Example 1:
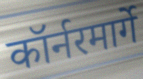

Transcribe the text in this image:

कॉर्नरमार्गे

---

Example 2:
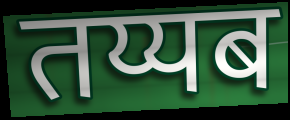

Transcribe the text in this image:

तय्यब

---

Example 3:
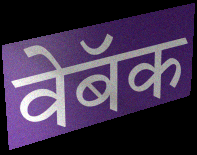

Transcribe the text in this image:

वेबॅक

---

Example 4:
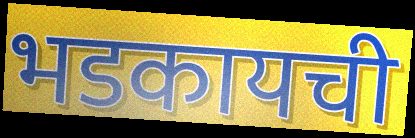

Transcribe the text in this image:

भडकायची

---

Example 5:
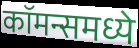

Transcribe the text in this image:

कॉमन्समध्ये